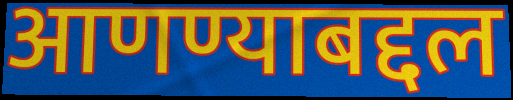
आणण्याबद्दल